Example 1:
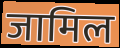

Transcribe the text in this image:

जामिल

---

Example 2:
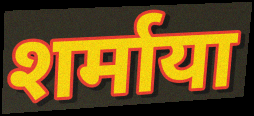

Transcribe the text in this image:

शर्माया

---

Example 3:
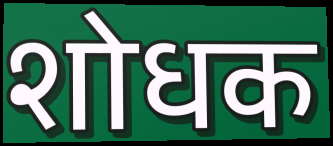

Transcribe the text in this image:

शोधक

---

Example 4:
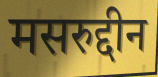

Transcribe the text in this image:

मसरुद्दीन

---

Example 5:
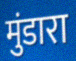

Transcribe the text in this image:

मुंडारा